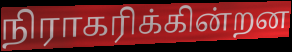
நிராகரிக்கின்றன